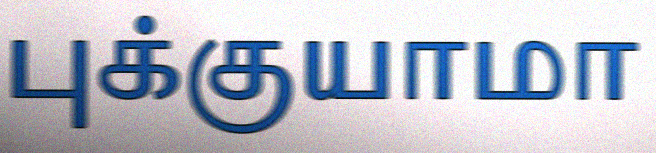
புக்குயாமா